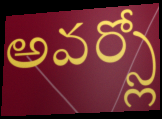
అవర్స్లో